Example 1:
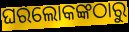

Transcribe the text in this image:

ଘରଲୋକଙ୍କଠାରୁ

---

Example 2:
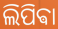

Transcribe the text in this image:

ଲିପିଵା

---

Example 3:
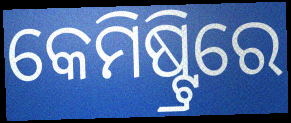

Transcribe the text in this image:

କେମିଷ୍ଟ୍ରିରେ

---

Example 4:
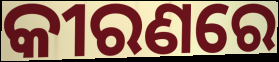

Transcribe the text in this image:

କୀରଣରେ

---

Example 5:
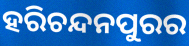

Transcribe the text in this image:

ହରିଚନ୍ଦନପୁରର